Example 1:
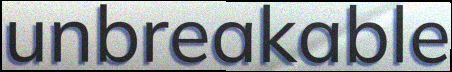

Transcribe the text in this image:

unbreakable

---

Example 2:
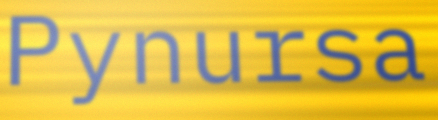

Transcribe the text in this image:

Pynursa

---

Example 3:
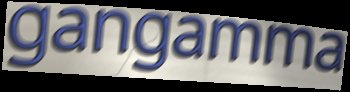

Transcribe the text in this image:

gangamma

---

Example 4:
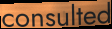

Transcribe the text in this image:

consulted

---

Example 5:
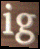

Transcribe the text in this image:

ig